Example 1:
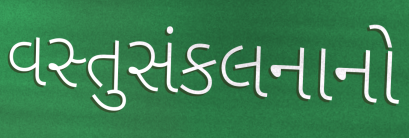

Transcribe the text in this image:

વસ્તુસંકલનાનો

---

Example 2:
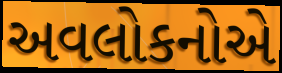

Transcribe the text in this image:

અવલોકનોએ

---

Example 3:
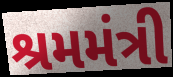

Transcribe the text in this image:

શ્રમમંત્રી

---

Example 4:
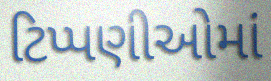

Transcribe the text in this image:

ટિપ્પણીઓમાં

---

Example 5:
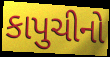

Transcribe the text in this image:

કાપુચીનો